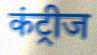
कंट्रीज